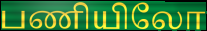
பணியிலோ